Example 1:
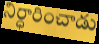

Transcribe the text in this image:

నిర్ధారించాడు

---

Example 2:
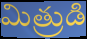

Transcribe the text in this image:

మిత్రుడి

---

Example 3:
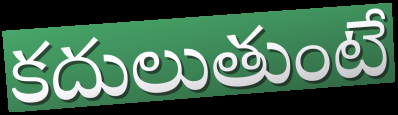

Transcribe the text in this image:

కదులుతుంటే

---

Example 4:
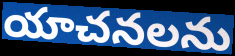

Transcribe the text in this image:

యాచనలను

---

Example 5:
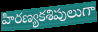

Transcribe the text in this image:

హిరణ్యకశిపులుగా